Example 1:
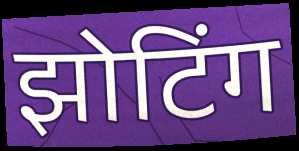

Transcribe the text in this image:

झोटिंग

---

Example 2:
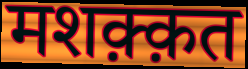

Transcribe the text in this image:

मशक़्क़त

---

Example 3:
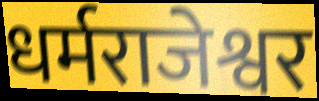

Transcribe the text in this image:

धर्मराजेश्वर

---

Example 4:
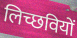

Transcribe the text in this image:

लिच्छवियों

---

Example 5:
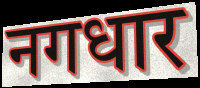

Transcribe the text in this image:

नगधार